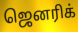
ஜெனரிக்